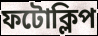
ফটোক্লিপ